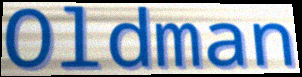
Oldman